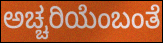
ಅಚ್ಚರಿಯೆಂಬಂತೆ